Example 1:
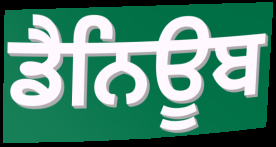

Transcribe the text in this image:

ਡੈਨਿਊਬ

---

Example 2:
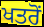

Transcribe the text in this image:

ਖਤਰੋਂ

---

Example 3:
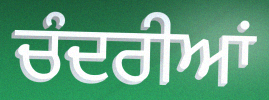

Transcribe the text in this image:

ਚੰਦਰੀਆਂ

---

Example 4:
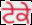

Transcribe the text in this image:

ਟੇਕੇ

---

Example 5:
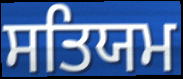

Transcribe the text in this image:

ਸਤਿਯਮ